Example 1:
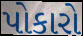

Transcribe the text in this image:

પોકારો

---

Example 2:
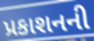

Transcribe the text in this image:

પ્રકાશનની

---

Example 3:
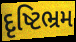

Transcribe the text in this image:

દૃષ્ટિભ્રમ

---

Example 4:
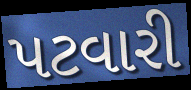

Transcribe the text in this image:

પટવારી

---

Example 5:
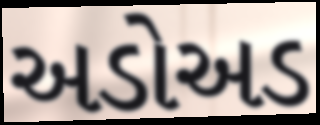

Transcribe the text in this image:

અડોઅડ